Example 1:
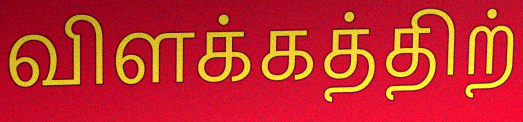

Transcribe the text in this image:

விளக்கத்திற்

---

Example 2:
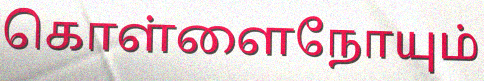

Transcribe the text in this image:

கொள்ளைநோயும்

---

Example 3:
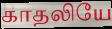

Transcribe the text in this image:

காதலியே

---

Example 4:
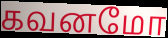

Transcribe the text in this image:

கவனமோ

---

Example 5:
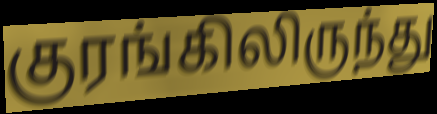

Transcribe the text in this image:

குரங்கிலிருந்து